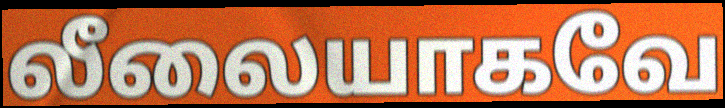
லீலையாகவே